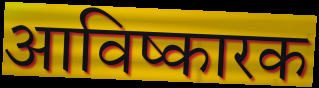
आविष्कारक